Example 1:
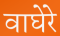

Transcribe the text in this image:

वाघेरे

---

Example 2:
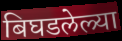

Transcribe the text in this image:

बिघडलेल्या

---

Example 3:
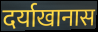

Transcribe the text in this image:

दर्याखानास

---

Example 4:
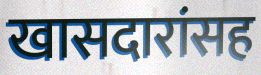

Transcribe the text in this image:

खासदारांसह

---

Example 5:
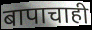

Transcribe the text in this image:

बापाचाही